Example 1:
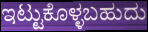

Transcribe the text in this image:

ಇಟ್ಟುಕೊಳ್ಳಬಹುದು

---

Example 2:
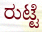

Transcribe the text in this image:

ರುಟ್ಟೆ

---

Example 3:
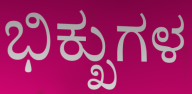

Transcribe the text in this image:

ಭಿಕ್ಖುಗಳ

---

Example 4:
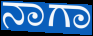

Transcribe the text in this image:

ನಾಗಾ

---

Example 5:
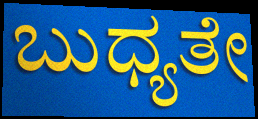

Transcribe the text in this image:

ಬುಧ್ಯತೇ